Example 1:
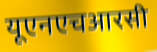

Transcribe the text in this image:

यूएनएचआरसी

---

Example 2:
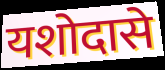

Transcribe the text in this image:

यशोदासे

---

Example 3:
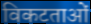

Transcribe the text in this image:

विकटताओं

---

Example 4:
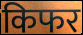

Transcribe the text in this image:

किफर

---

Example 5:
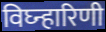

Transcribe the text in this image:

विघ्न्हारिणी